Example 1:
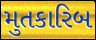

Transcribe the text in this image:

મુતકારિબ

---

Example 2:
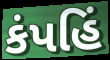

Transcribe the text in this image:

કંપહિં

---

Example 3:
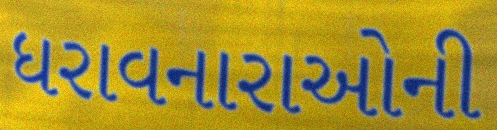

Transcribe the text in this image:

ધરાવનારાઓની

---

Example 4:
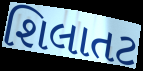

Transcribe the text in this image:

શિલાતટ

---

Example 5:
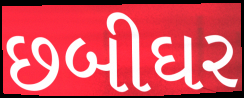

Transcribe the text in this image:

છબીઘર